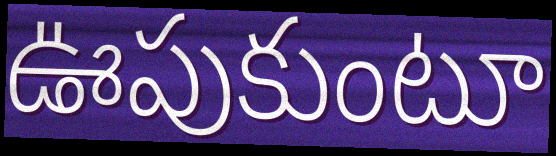
ఊపుకుంటూ